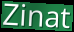
Zinat